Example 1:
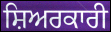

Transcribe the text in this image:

ਸ਼ਿਅਰਕਾਰੀ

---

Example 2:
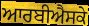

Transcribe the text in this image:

ਆਰਬੀਐਸਕੇ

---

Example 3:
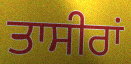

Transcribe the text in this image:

ਤਾਸੀਰਾਂ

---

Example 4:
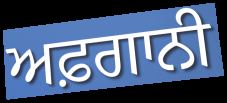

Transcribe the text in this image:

ਅਫ਼ਗਾਨੀ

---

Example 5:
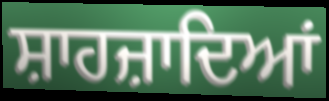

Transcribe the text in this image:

ਸ਼ਾਹਜ਼ਾਦਿਆਂ